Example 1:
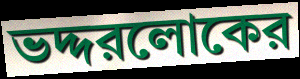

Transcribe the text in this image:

ভদ্দরলোকের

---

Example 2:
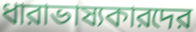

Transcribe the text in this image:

ধারাভাষ্যকারদের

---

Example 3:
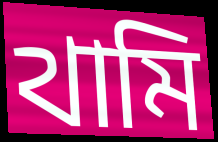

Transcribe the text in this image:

থামি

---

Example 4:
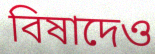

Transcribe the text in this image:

বিষাদেও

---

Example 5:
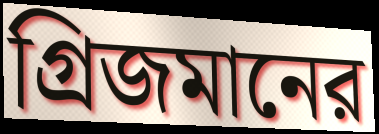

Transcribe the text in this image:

গ্রিজমানের